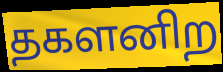
தகளனிற